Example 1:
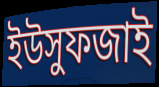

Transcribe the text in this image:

ইউসুফজাই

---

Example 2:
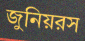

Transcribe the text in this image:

জুনিয়রস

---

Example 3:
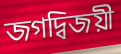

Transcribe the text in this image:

জগদ্বিজয়ী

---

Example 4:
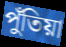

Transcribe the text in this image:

পুঁতিয়া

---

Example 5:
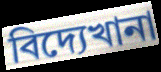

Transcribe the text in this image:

বিদ্যেখানা